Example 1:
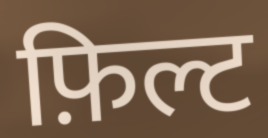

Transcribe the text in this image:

फ़िल्ट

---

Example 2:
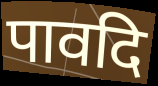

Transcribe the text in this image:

पावदि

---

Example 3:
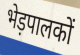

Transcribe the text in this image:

भेड़पालकों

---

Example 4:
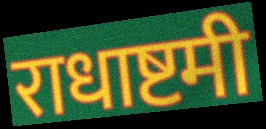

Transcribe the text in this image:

राधाष्टमी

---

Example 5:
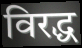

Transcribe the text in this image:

विरद्ध